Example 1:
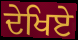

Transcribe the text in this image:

ਦੇਖਿਏ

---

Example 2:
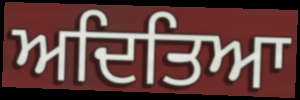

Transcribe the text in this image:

ਅਦਿਤਿਆ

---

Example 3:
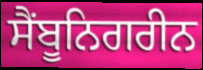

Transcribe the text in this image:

ਸੈਂਬੂਨਿਗਰੀਨ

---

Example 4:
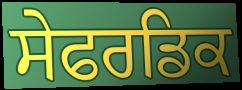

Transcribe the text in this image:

ਸੇਫਰਡਿਕ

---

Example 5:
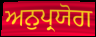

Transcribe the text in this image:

ਅਨੁਪ੍ਰਯੋਗ